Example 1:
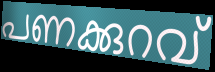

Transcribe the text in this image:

പണക്കുറവ്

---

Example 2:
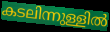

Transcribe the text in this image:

കടലിന്നുള്ളിൽ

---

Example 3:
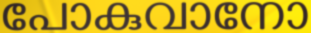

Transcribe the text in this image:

പോകുവാനോ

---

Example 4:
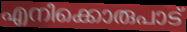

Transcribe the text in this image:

എനിക്കൊരുപാട്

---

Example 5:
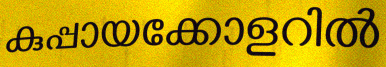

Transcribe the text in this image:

കുപ്പായക്കോളറിൽ